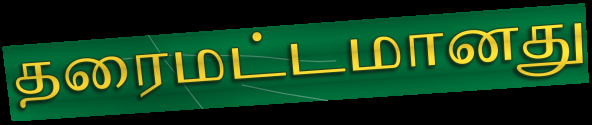
தரைமட்டமானது